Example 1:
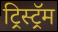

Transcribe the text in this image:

ट्रिस्ट्रॅम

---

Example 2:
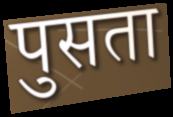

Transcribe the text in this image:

पुसता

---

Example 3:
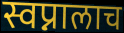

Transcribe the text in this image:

स्वप्नालाच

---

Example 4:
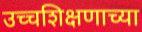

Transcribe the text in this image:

उच्चशिक्षणाच्या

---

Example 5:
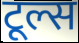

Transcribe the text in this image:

टूल्स